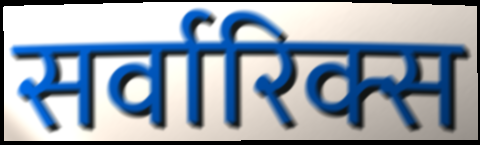
सर्वारिक्स